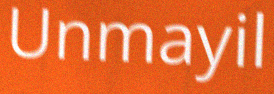
Unmayil